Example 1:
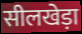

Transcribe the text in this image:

सीलखेड़ा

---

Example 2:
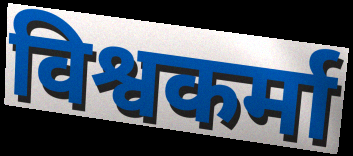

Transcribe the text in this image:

विश्वकर्मा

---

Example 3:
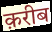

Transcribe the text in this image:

क़रीब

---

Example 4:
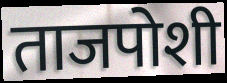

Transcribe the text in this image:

ताजपोशी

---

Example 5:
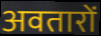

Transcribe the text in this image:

अवतारों